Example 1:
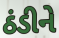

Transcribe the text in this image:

ઠંડીને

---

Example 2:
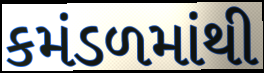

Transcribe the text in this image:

કમંડળમાંથી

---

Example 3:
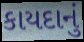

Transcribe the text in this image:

કાયદાનું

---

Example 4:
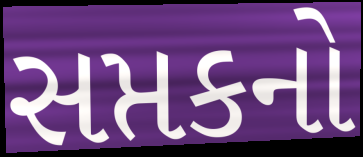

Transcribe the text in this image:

સપ્તકનો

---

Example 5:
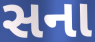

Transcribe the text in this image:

સના